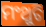
ମଂଥୁଚି